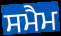
ਸਮੈਮ